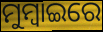
ମୁମ୍ୱାଇରେ